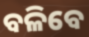
ବଳିବେ